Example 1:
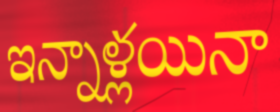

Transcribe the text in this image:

ఇన్నాళ్లయినా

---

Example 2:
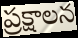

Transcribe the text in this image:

ప్రక్షాలన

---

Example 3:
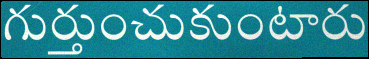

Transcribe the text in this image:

గుర్తుంచుకుంటారు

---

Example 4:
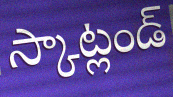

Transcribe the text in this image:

స్కాట్లండ్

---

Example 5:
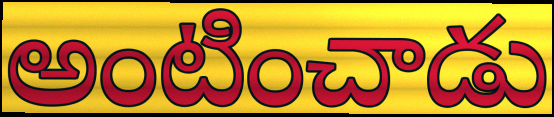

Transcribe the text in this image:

అంటించాడు